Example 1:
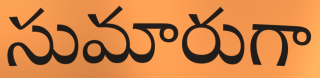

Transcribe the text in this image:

సుమారుగా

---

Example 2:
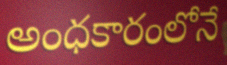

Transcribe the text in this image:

అంధకారంలోనే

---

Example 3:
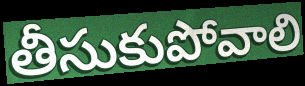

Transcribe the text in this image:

తీసుకుపోవాలి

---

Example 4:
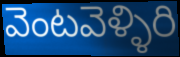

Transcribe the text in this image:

వెంటవెళ్ళిరి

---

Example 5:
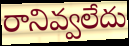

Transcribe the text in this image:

రానివ్వలేదు